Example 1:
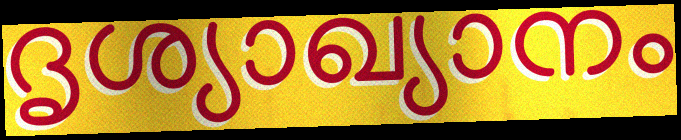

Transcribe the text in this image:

ദൃശ്യാഖ്യാനം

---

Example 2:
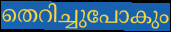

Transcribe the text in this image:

തെറിച്ചുപോകും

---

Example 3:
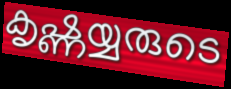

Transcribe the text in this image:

കൃഷ്ണയ്യരുടെ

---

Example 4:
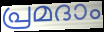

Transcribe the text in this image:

പ്രമദാം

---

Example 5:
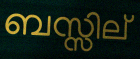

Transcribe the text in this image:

ബസ്സില്